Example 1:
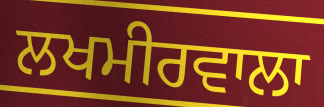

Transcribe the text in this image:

ਲਖਮੀਰਵਾਲਾ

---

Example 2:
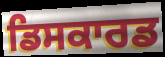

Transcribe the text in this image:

ਡਿਸਕਾਰਡ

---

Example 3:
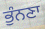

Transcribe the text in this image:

ਭੁੰਨਣਾ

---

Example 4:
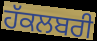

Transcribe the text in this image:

ਹੱਕਲਬਰੀ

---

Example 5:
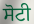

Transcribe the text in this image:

ਸੋਟੀ